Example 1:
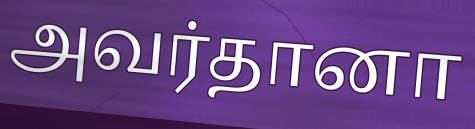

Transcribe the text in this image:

அவர்தானா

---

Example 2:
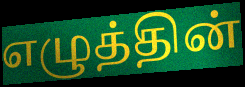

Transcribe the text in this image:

எழுத்தின்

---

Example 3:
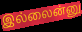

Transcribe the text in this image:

இல்லைன்னு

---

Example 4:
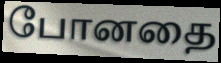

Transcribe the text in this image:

போனதை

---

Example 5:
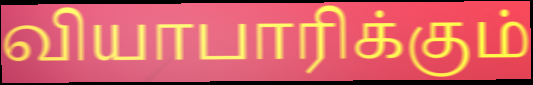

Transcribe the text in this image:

வியாபாரிக்கும்